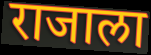
राजाला